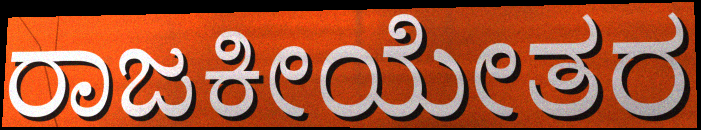
ರಾಜಕೀಯೇತರ